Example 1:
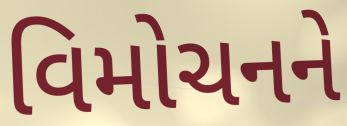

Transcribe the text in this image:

વિમોચનને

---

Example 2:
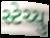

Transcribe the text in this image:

સ્ટેચ્યુ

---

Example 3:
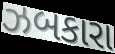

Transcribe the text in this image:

ઝબકારા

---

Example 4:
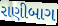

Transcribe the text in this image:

રાણીબાગ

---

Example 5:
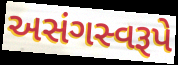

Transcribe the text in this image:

અસંગસ્વરૂપે